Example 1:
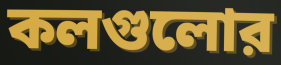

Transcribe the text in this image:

কলগুলোর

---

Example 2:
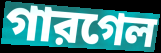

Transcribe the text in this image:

গারগেল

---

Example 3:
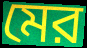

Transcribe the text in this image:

মের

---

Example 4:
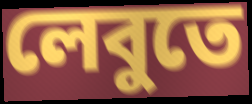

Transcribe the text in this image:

লেবুতে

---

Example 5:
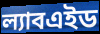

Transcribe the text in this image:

ল্যাবএইড